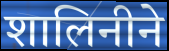
शालिनीने